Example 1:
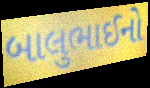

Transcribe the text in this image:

બાલુભાઈનો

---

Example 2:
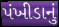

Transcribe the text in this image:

પંખીડાનું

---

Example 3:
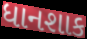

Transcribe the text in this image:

ધાનશાક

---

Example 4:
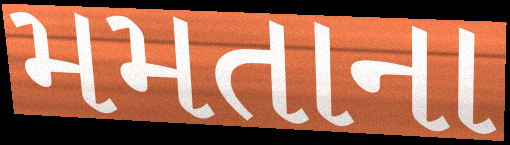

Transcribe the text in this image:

મમતાના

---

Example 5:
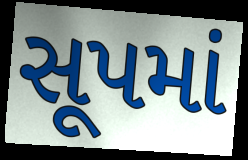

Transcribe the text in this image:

સૂપમાં